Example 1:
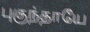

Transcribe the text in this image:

புகுந்தாயே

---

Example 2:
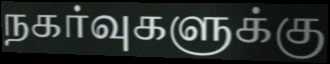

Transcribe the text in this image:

நகர்வுகளுக்கு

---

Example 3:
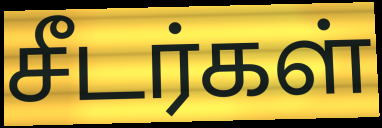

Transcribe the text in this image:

சீடர்கள்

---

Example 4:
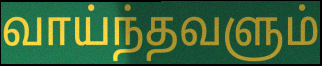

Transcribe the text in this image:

வாய்ந்தவளும்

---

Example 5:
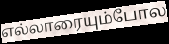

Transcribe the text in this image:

எல்லாரையும்போல